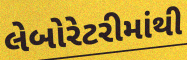
લેબોરેટરીમાંથી